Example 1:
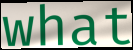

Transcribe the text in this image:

what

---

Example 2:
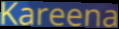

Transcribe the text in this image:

Kareena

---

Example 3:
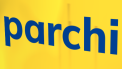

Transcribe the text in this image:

parchi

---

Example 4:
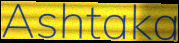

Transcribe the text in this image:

Ashtaka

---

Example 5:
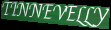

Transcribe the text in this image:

TINNEVELLY